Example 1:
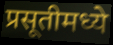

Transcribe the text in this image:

प्रसूतीमध्ये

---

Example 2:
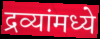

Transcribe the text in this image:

द्रव्यांमध्ये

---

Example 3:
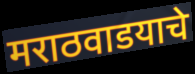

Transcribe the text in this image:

मराठवाडयाचे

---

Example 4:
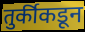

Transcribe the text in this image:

तुर्कीकडून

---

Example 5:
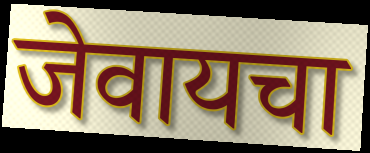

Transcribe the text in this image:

जेवायचा